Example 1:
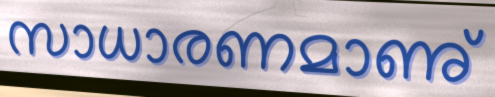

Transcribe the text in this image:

സാധാരണമാണു്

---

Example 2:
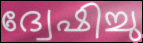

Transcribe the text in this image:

ദ്വേഷിച്ചു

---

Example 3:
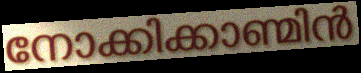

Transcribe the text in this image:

നോക്കിക്കാണ്മിൻ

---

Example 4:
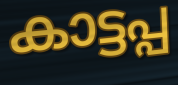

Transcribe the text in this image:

കാട്ടപ്പ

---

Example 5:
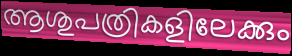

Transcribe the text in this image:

ആശുപത്രികളിലേക്കും